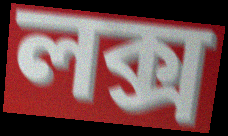
লক্স